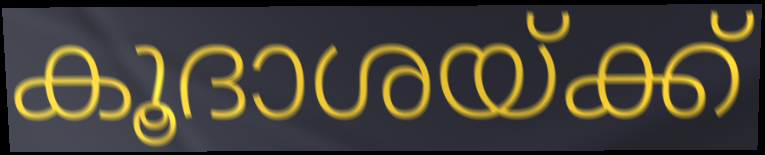
കൂദാശയ്ക്ക്